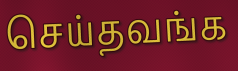
செய்தவங்க